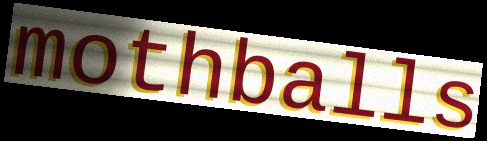
mothballs